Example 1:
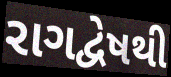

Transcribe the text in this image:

રાગદ્વેષથી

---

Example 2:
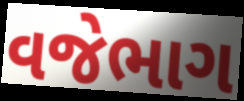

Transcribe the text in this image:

વજેભાગ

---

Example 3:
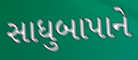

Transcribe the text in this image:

સાધુબાપાને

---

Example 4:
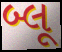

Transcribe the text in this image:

બ્લૂ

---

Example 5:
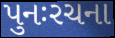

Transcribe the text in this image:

પુનઃરચના